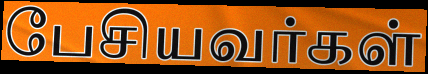
பேசியவர்கள்